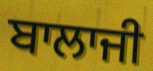
ਬਾਲਾਜੀ